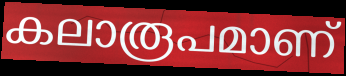
കലാരൂപമാണ്